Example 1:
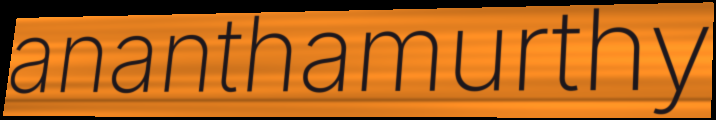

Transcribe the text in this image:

ananthamurthy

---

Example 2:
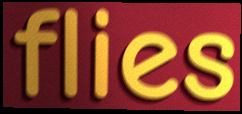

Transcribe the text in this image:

flies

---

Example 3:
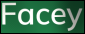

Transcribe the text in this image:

Facey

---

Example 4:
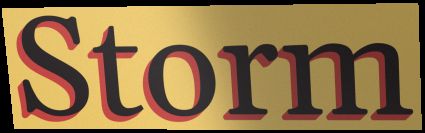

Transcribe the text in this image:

Storm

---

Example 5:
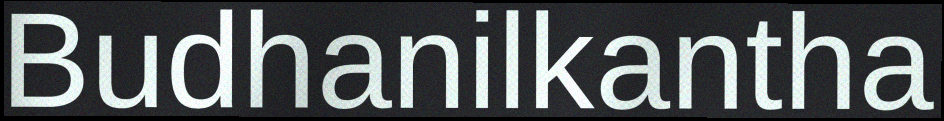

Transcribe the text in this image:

Budhanilkantha